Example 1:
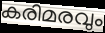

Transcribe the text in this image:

കരിമരവും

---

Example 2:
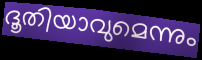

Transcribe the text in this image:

ദൂതിയാവുമെന്നും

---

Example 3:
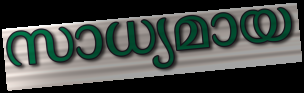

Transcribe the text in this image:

സാധ്യമായ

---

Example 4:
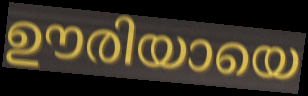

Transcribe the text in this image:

ഊരിയായെ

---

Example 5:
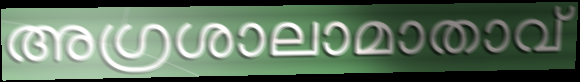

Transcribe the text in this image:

അഗ്രശാലാമാതാവ്